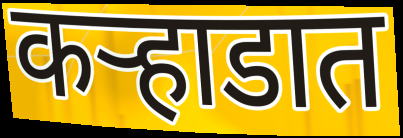
कऱ्हाडात